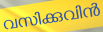
വസിക്കുവിൻ